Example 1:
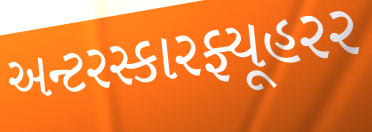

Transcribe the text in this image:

અન્ટરસ્કારફ્યૂહરર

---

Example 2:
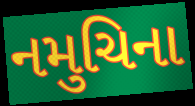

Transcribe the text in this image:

નમુચિના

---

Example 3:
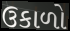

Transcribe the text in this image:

ઉકાળો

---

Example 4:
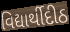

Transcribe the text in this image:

વિદ્યાર્થીદીઠ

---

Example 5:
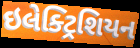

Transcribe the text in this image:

ઇલેક્ટ્રિશિયન